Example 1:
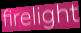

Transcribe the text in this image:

firelight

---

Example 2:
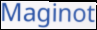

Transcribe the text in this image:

Maginot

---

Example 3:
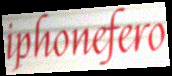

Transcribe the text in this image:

iphonefero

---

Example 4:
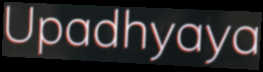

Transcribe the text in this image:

Upadhyaya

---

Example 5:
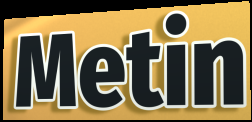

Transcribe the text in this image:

Metin